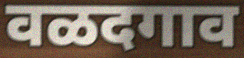
वळदगाव